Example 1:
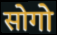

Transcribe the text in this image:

सोगो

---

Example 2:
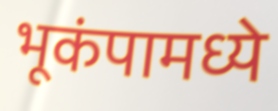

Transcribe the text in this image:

भूकंपामध्ये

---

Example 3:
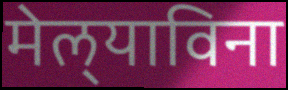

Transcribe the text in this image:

मेल्याविना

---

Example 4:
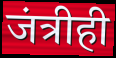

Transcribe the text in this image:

जंत्रीही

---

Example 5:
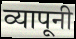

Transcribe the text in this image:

व्यापूनी